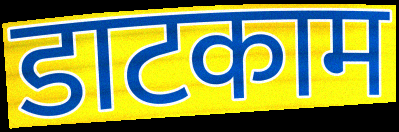
डाटकाम